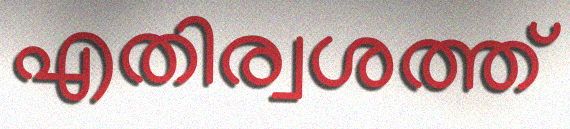
എതിര്വശത്ത്